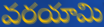
వరయామి